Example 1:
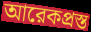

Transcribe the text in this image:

আরেকপ্রস্ত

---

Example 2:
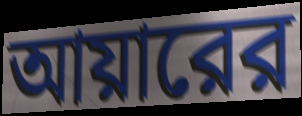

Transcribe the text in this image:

আয়ারের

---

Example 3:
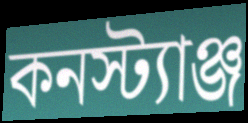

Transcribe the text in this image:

কনস্ট্যাঞ্জ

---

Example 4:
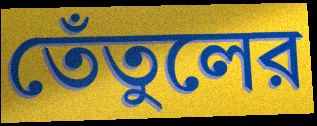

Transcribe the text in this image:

তেঁতুলের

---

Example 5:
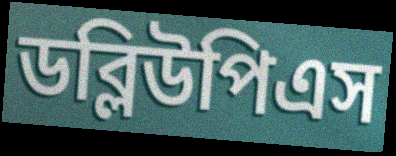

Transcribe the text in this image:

ডব্লিউপিএস